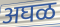
अघळ